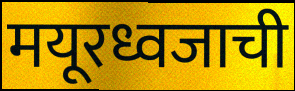
मयूरध्वजाची